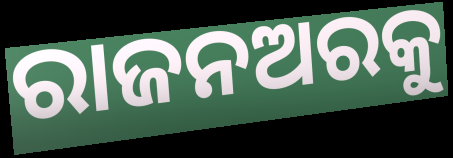
ରାଜନଅରକୁ